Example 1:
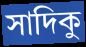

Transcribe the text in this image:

সাদিকু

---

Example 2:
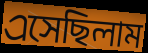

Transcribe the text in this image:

এসেছিলাম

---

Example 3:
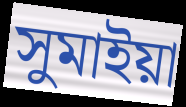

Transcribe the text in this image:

সুমাইয়া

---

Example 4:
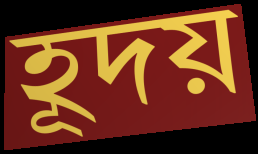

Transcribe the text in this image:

হূদয়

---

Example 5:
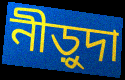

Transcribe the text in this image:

নীড়ুদা